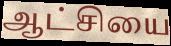
ஆட்சியை